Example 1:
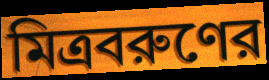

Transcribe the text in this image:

মিত্রবরুণের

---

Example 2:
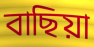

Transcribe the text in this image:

বাছিয়া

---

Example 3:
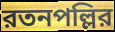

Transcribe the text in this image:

রতনপল্লির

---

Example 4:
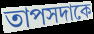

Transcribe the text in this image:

তাপসদাকে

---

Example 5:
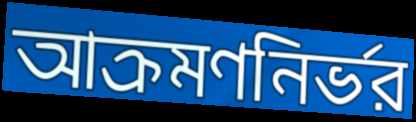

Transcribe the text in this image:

আক্রমণনির্ভর